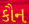
કૌન